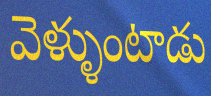
వెళ్ళుంటాడు